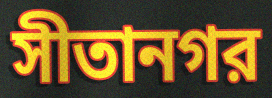
সীতানগর